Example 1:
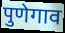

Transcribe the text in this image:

पुणेगाव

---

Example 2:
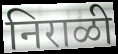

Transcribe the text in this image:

निराळी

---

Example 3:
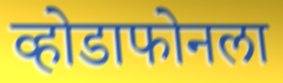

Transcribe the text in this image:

व्होडाफोनला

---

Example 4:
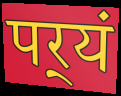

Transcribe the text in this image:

पर्यं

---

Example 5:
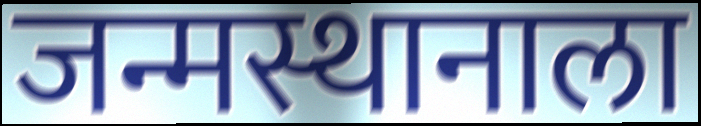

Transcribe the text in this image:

जन्मस्थानाला